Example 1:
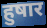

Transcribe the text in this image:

हुषार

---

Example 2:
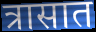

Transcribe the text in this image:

त्रासात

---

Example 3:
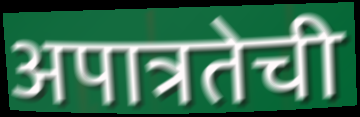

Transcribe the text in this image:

अपात्रतेची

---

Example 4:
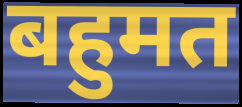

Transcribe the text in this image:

बहुमत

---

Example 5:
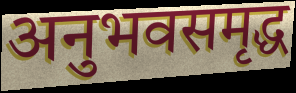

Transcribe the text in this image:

अनुभवसमृद्ध